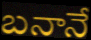
బనానే